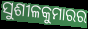
ସୁଶୀଳକୁମାରର